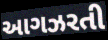
આગઝરતી